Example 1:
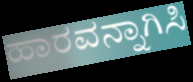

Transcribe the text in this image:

ಹಾರವನ್ನಾಗಿಸಿ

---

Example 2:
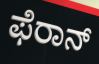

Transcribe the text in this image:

ಫೆರಾನ್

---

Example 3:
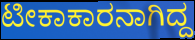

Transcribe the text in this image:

ಟೀಕಾಕಾರನಾಗಿದ್ದ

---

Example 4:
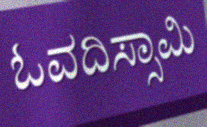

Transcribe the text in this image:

ಓವದಿಸ್ಸಾಮಿ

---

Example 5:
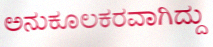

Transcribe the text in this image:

ಅನುಕೂಲಕರವಾಗಿದ್ದು